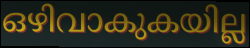
ഒഴിവാകുകയില്ല